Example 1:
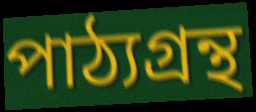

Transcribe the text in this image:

পাঠ্যগ্রন্থ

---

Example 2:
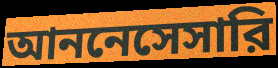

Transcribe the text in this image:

আননেসেসারি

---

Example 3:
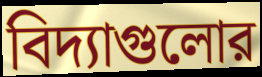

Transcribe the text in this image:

বিদ্যাগুলোর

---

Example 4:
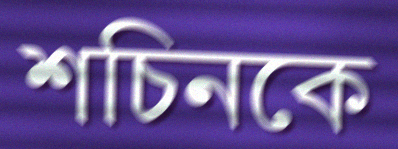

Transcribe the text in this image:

শচিনকে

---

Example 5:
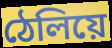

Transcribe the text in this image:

ঠেলিয়ে